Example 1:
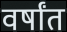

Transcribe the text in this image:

वर्षांत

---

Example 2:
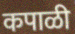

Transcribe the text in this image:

कपाळी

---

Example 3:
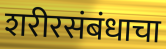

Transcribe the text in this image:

शरीरसंबंधाचा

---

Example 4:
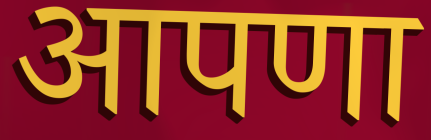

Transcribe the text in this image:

आपणा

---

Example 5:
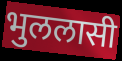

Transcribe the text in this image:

भुललासी